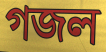
গজল